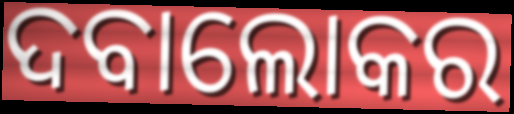
ଦବାଲୋକର